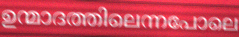
ഉന്മാദത്തിലെന്നപോലെ